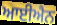
ਆਈਐਨ